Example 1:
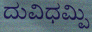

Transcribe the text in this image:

ದುವಿಧಮ್ಪಿ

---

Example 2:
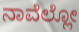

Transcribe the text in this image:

ನಾವೆಲ್ಲೋ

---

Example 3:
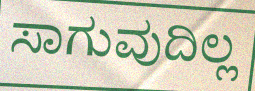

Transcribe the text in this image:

ಸಾಗುವುದಿಲ್ಲ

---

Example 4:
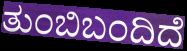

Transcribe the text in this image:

ತುಂಬಿಬಂದಿದೆ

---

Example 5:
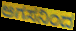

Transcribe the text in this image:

ಅಗಸನಿಂದ